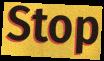
Stop